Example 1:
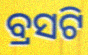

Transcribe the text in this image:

ବ୍ରସଟି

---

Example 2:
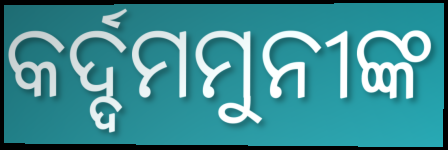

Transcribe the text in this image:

କର୍ଦ୍ଦମମୁନୀଙ୍କ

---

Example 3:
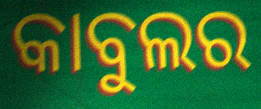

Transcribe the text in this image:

କାବୁଲର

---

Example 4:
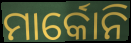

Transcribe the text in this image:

ମାର୍କୋନି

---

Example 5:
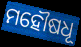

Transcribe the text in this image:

ମହୌଷଧୂ